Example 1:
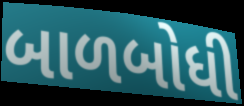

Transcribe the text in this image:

બાળબોધી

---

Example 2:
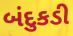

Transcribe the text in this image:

બંદુકડી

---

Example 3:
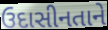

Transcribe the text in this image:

ઉદાસીનતાને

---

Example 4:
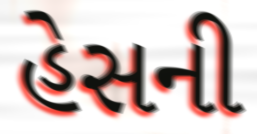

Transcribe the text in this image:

હેસની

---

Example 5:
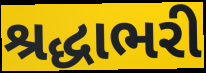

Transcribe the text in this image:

શ્રદ્ધાભરી